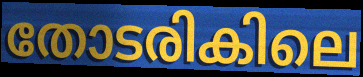
തോടരികിലെ